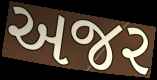
અજર